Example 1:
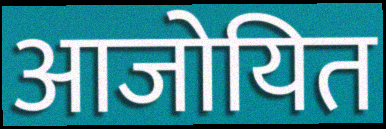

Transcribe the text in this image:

आजोयित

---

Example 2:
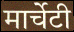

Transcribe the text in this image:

मार्चेटी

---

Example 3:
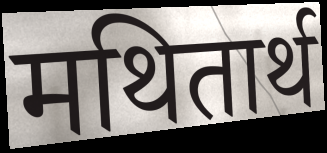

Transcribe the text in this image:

मथितार्थ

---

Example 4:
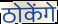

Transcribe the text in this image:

ठोकेंगे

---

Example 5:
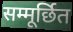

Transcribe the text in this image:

सम्मूर्छित